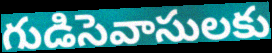
గుడిసెవాసులకు